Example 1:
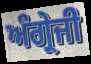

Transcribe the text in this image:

ਅੰਗ੍ਰੇਜੀ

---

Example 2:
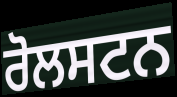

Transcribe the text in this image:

ਰੋਲਸਟਨ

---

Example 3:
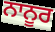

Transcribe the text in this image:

ਨਾਨੂਰ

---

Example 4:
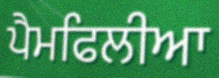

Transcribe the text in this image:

ਪੈਮਫਿਲੀਆ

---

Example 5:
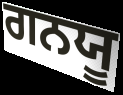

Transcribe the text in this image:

ਗਨਯੂ